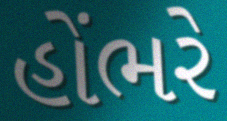
હોંભરે